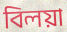
বিলয়া